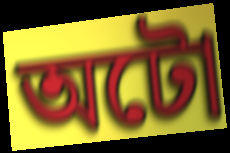
অটো